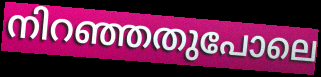
നിറഞ്ഞതുപോലെ